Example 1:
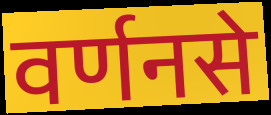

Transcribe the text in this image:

वर्णनसे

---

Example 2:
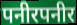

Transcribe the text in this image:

पनीरपनीर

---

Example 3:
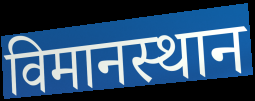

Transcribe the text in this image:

विमानस्थान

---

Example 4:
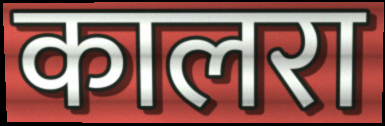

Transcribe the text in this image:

कालरा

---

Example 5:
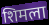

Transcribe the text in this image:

शिमला